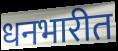
धनभारीत